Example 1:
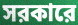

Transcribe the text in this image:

সরকারে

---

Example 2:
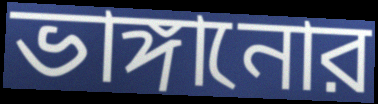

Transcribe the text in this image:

ভাঙ্গানোর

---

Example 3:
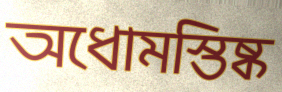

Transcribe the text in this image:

অধোমস্তিষ্ক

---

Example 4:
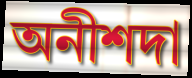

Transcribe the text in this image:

অনীশদা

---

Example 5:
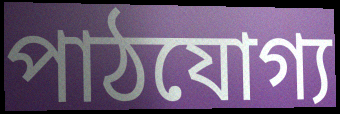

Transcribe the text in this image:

পাঠযোগ্য